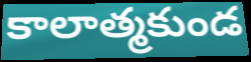
కాలాత్మకుండ